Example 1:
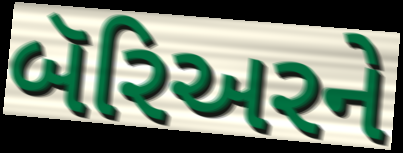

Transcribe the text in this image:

બૅરિઅરને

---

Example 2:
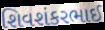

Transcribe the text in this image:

શિવશંકરભાઈ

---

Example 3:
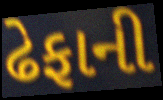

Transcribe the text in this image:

ઢેફાની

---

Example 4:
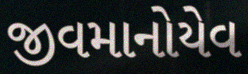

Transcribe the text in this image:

જીવમાનોયેવ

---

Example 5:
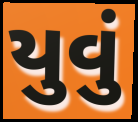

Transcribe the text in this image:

યુવું